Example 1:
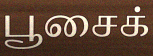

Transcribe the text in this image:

பூசைக்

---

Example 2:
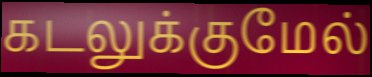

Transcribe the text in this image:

கடலுக்குமேல்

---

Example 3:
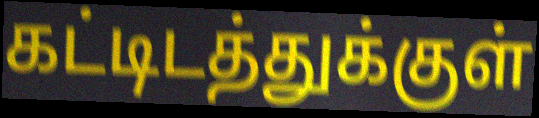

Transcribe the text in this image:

கட்டிடத்துக்குள்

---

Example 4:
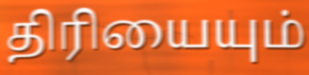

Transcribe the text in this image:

திரியையும்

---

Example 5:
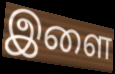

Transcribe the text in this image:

இளை